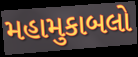
મહામુકાબલો